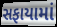
સફાયામાં